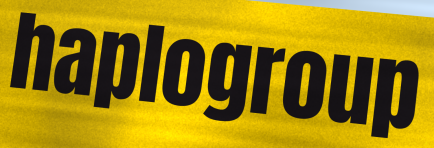
haplogroup